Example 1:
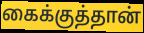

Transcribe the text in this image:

கைக்குத்தான்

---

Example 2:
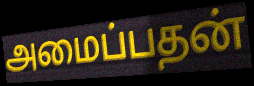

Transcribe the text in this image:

அமைப்பதன்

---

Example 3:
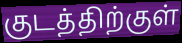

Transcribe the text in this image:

குடத்திற்குள்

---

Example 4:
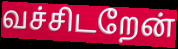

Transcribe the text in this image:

வச்சிடறேன்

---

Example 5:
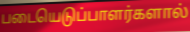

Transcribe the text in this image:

படையெடுப்பாளர்களால்